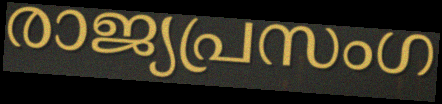
രാജ്യപ്രസംഗ